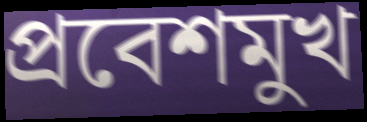
প্রবেশমুখ